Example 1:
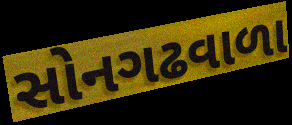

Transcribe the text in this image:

સોનગઢવાળા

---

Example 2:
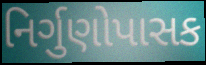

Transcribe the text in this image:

નિર્ગુણોપાસક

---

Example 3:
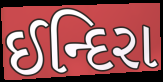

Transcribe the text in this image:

ઈન્દિરા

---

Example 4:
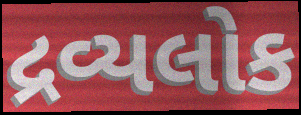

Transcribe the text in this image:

દ્રવ્યલોક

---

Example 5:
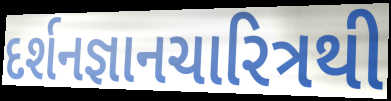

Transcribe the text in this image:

દર્શનજ્ઞાનચારિત્રથી